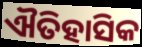
ଐତିହାସିକ